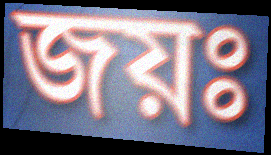
জয়ঃ